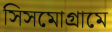
সিসমোগ্রামে